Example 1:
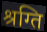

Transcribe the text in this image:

श्रग्ति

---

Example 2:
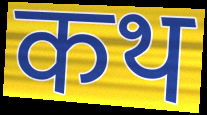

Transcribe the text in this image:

कथ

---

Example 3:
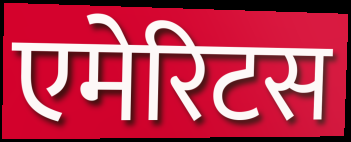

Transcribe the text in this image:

एमेरिटस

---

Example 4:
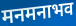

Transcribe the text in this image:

मनमनाभव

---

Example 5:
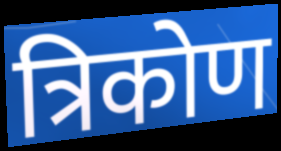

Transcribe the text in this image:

त्रिकोण